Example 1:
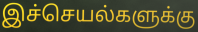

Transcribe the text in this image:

இச்செயல்களுக்கு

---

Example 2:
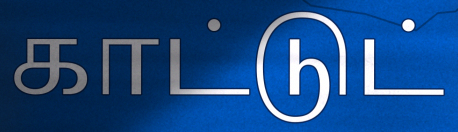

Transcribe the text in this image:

காட்டுட்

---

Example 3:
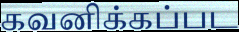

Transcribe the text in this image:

கவனிக்கப்பட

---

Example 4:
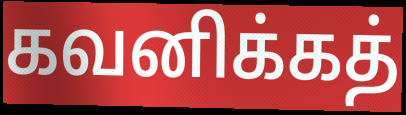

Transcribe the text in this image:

கவனிக்கத்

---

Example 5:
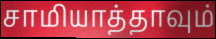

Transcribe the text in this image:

சாமியாத்தாவும்